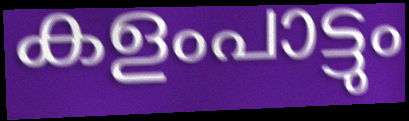
കളംപാട്ടും